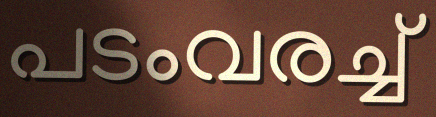
പടംവരച്ച്